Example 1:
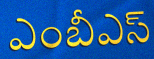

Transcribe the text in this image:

ఎంబీఎస్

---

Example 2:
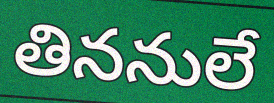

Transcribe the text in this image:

తిననులే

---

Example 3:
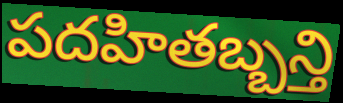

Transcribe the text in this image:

పదహితబ్బన్తి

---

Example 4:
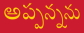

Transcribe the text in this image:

అప్పన్నను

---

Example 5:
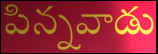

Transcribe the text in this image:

పిన్నవాడు